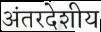
अंतरदेशीय